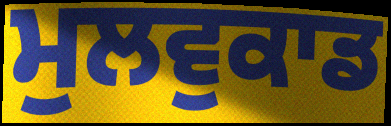
ਮੁਲਵੁਕਾਡ